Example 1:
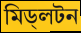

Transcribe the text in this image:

মিড্লটন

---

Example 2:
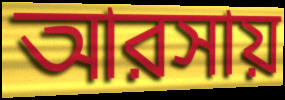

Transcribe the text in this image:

আরসায়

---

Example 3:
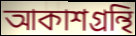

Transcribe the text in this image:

আকাশগ্রন্থি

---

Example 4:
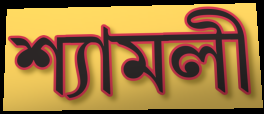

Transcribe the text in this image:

শ্যামলী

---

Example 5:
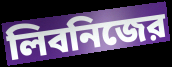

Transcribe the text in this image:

লিবনিজের